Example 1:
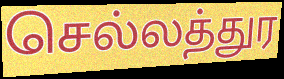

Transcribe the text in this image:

செல்லத்துர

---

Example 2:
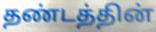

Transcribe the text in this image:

தண்டத்தின்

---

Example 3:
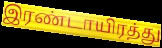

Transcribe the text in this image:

இரண்டாயிரத்து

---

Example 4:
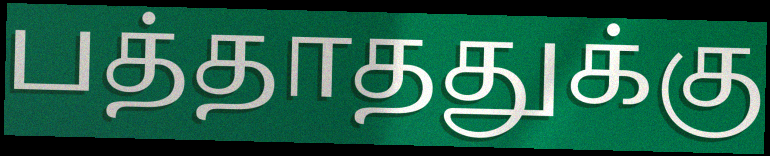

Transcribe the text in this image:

பத்தாததுக்கு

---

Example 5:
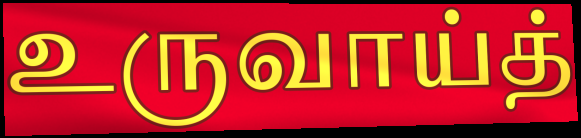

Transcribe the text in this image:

உருவாய்த்